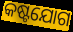
କଷ୍ଟଯୋଗ